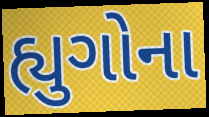
હ્યુગોના